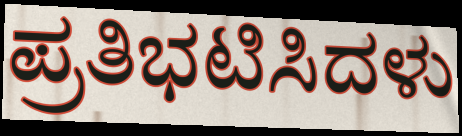
ಪ್ರತಿಭಟಿಸಿದಳು